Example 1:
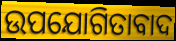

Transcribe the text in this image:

ଉପଯୋଗିତାବାଦ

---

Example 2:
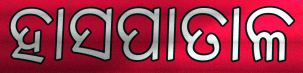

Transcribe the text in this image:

ହାସପାତାଳ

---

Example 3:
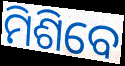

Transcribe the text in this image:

ମିଶିବେ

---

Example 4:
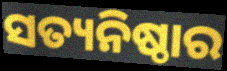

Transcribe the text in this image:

ସତ୍ୟନିଷ୍ଠାର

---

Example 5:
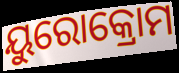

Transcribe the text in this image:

ୟୁରୋକ୍ରୋମ